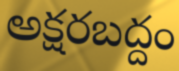
అక్షరబద్దం